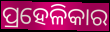
ପ୍ରହେଳିକାର